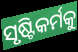
ସୃଷ୍ଟିକର୍ମକୁ